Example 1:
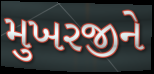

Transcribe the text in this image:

મુખરજીને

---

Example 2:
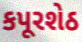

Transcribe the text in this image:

કપૂરશેઠ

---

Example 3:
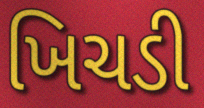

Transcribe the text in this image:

ખિચડી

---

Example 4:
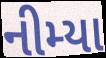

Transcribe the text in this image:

નીમ્યા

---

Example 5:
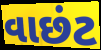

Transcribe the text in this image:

વાછંટ